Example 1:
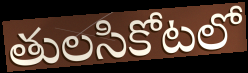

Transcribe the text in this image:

తులసికోటలో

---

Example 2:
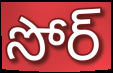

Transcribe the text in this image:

సోర్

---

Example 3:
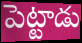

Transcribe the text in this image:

పెట్టాడు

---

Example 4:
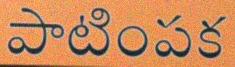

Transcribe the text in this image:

పాటింపక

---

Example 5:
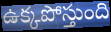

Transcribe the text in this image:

ఉక్కపోస్తుంది